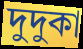
দুদুকা